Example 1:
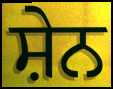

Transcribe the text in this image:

ਸ਼ੇਨ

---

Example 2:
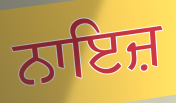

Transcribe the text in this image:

ਨਾਇਜ਼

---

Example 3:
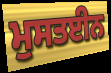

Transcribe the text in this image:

ਮੁਸਤਈਨ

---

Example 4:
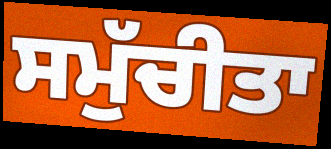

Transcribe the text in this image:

ਸਮੁੱਚੀਤਾ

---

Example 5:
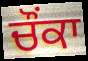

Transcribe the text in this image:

ਚੌਂਕਾ